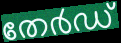
തേർഡ്